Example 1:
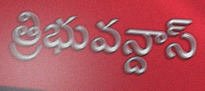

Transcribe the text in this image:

త్రిభువన్దాస్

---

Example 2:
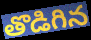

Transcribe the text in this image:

తొడిగిన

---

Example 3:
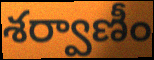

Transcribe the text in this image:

శర్వాణీం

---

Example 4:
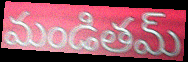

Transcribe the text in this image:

మండితమ్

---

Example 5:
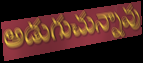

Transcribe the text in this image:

అడుగుచున్నావు